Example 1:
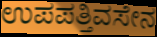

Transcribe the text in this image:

ಉಪಪತ್ತಿವಸೇನ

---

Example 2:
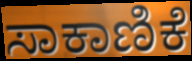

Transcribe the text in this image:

ಸಾಕಾಣಿಕೆ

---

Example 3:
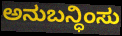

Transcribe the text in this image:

ಅನುಬನ್ಧಿಂಸು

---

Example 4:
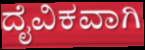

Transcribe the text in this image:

ದೈವಿಕವಾಗಿ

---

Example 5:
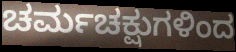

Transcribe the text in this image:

ಚರ್ಮಚಕ್ಷುಗಳಿಂದ